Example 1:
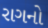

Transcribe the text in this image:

રાગનો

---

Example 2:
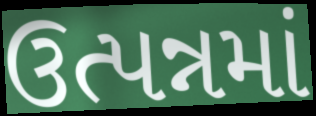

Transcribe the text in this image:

ઉત્પન્નમાં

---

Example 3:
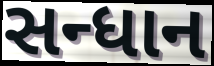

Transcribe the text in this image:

સન્ધાન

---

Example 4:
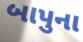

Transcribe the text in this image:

બાપુના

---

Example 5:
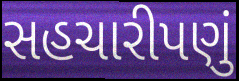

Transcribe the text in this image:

સહચારીપણું